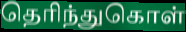
தெரிந்துகொள்